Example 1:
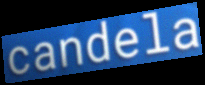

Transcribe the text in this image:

candela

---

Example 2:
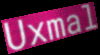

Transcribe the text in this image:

Uxmal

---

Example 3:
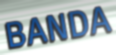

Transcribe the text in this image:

BANDA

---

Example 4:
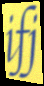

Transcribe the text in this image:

ifj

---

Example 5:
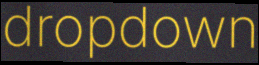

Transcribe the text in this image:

dropdown